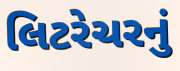
લિટરેચરનું